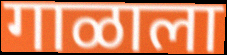
गाळाला